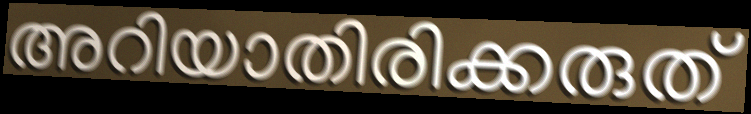
അറിയാതിരിക്കരുത്